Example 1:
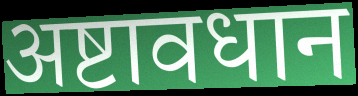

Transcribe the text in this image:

अष्टावधान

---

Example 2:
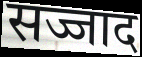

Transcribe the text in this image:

सज्जाद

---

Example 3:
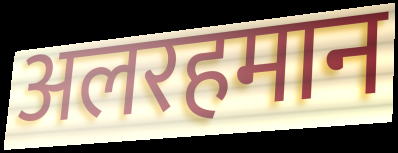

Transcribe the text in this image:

अलरहमान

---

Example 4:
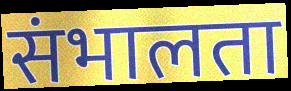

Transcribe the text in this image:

संभालता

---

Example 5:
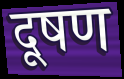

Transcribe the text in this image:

दूषण